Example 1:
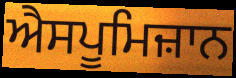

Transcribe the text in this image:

ਐਸਪੂਮਿਜ਼ਾਨ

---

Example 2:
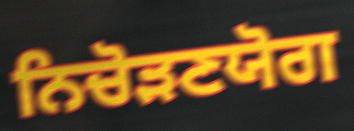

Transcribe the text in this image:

ਨਿਚੋੜਣਯੋਗ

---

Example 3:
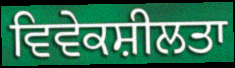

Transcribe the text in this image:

ਵਿਵੇਕਸ਼ੀਲਤਾ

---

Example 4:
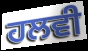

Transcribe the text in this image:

ਹਲਵੀ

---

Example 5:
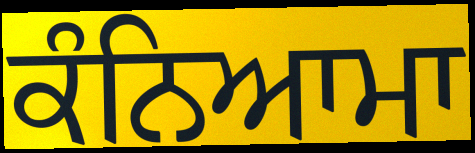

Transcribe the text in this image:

ਕੰਨਿਆਮਾ